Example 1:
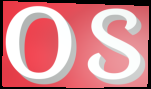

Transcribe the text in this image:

os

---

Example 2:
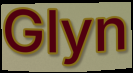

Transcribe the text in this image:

Glyn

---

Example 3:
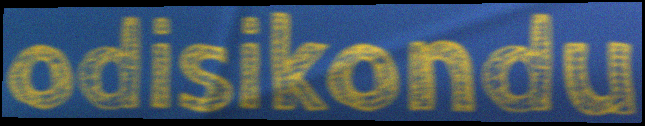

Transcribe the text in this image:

odisikondu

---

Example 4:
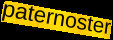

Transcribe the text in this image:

paternoster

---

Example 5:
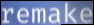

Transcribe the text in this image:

remake